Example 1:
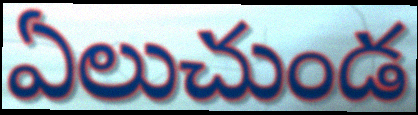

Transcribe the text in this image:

ఏలుచుండ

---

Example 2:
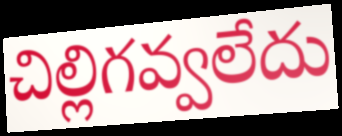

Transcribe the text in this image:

చిల్లిగవ్వలేదు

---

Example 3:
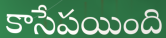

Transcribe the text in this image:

కాసేపయింది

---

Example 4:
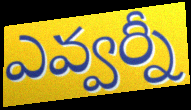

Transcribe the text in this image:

ఎవ్వర్నీ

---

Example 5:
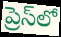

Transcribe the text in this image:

ప్రెస్‌లో